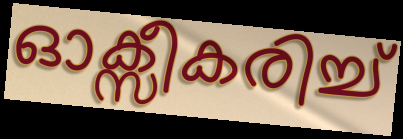
ഓക്സീകരിച്ച്